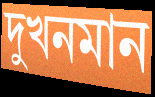
দুখনমান